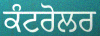
ਕੰਟਰੋਲਰ